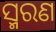
ସ୍ମରଣ